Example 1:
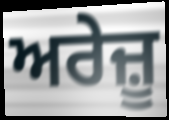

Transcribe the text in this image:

ਅਰੇਜ਼ੂ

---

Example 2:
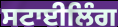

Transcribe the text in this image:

ਸਟਾਈਲਿੰਗ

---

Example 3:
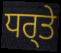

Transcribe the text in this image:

ਧਰ੍ਤੇ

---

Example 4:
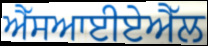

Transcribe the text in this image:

ਐੱਸਆਈਏਐੱਲ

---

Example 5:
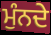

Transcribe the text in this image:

ਮੁੰਨਦੇ